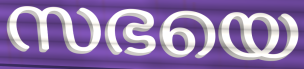
സഭയെ